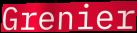
Grenier